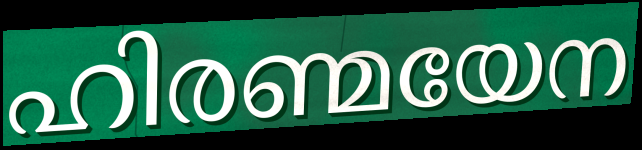
ഹിരണ്മയേന